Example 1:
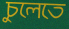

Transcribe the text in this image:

চুলেতে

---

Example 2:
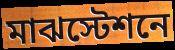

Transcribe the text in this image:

মাঝস্টেশনে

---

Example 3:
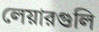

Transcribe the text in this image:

লেয়ারগুলি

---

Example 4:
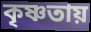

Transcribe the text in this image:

কৃষ্ণতায়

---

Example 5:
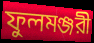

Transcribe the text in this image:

ফুলমঞ্জরী